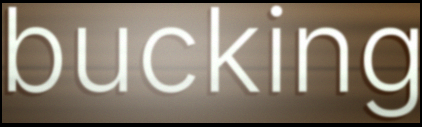
bucking